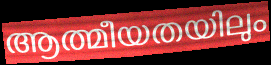
ആത്മീയതയിലും